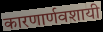
कारणार्णवशायी